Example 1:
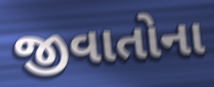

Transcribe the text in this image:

જીવાતોના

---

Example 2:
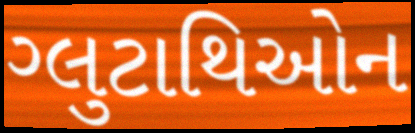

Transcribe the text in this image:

ગ્લુટાથિઓન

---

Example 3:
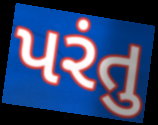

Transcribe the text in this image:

પરંતુ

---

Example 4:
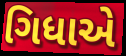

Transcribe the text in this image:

ગિધાએ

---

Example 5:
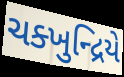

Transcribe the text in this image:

ચક્ખુન્દ્રિયે